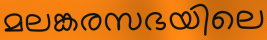
മലങ്കരസഭയിലെ